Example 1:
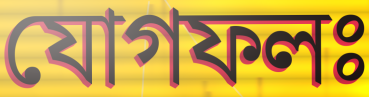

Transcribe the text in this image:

যোগফলঃ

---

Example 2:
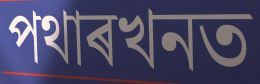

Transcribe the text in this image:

পথাৰখনত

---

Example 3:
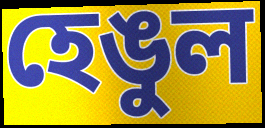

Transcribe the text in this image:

হেঙুল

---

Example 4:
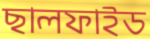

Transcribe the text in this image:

ছালফাইড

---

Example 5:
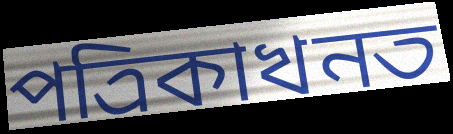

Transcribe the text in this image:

পত্ৰিকাখনত